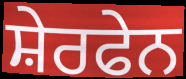
ਸ਼ੇਰਫੇਨ